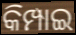
କିମ୍ପାଇ